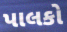
પાલકો